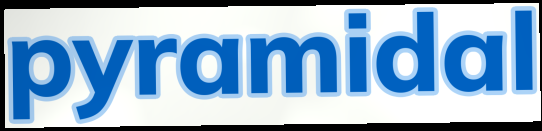
pyramidal